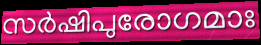
സർഷിപുരോഗമാഃ